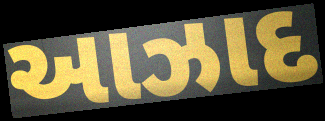
આઝાદ